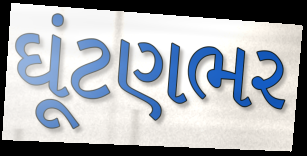
ઘૂંટણભર